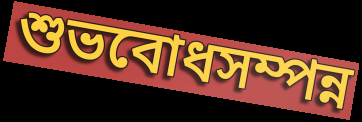
শুভবোধসম্পন্ন